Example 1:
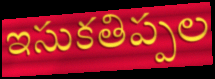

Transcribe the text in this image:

ఇసుకతిప్పల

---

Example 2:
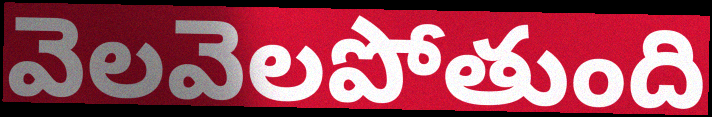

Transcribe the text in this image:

వెలవెలపోతుంది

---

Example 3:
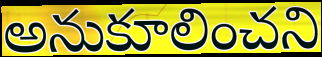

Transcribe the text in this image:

అనుకూలించని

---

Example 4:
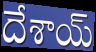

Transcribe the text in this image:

దేశాయ్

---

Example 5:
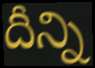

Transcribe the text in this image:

దీన్ని